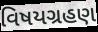
વિષયગ્રહણ